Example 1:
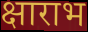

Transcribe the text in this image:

क्षाराभ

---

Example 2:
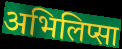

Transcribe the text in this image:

अभिलिप्सा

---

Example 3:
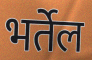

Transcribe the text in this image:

भर्तेल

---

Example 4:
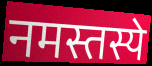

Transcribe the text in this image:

नमस्तस्ये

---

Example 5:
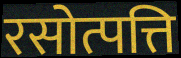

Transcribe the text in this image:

रसोत्पत्ति